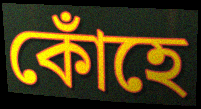
কোঁহে